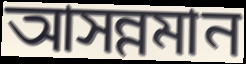
আসন্নমান